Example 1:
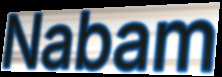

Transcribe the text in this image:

Nabam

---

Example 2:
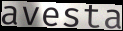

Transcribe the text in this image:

avesta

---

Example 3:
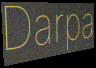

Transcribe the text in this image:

Darpa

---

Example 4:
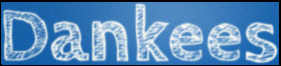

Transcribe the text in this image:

Dankees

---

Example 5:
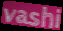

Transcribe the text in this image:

vashi